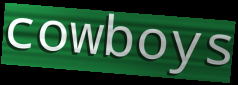
cowboys